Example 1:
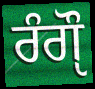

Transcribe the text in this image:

ਰੰਗੵੌ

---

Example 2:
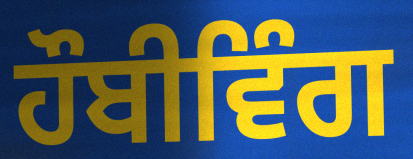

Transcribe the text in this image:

ਹੌਬੀਵਿੰਗ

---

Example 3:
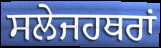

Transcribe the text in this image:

ਸਲੇਜਹਥਰਾਂ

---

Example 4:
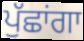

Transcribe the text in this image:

ਪੁੱਛਾਂਗਾ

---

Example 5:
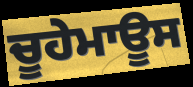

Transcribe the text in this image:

ਚੂਹੇਮਾਊਸ